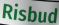
Risbud